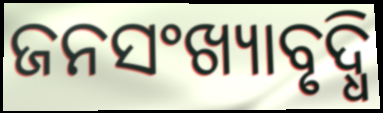
ଜନସଂଖ୍ୟାବୃଦ୍ଧି